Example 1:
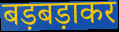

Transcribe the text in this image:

बड़बड़ाकर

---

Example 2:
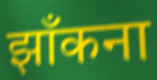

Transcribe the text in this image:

झाँकना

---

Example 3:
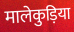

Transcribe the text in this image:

मालेकुड़िया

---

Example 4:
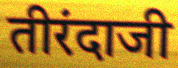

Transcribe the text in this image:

तीरंदाजी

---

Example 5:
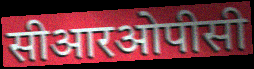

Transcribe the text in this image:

सीआरओपीसी